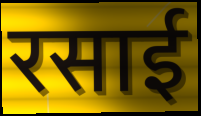
रसाई